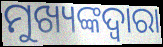
ମୁଖ୍ୟଙ୍କଦ୍ଵାରା